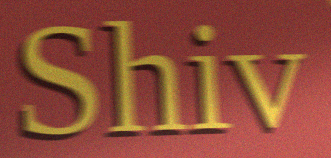
Shiv